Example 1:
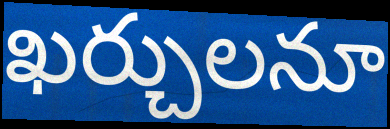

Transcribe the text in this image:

ఖర్చులనూ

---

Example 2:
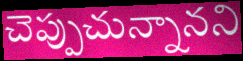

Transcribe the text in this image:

చెప్పుచున్నానని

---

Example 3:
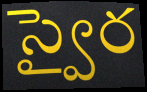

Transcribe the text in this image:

స్వైర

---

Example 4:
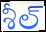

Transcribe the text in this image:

శీల్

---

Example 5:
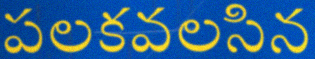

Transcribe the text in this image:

పలకవలసిన